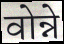
वोन्ने